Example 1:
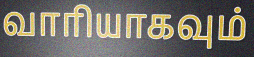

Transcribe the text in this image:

வாரியாகவும்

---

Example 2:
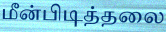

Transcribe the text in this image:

மீன்பிடித்தலை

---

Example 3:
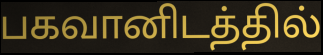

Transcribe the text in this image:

பகவானிடத்தில்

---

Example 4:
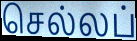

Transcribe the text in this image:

செல்லப்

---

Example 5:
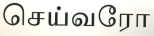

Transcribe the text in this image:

செய்வரோ